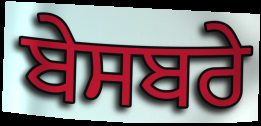
ਬੇਸਬਰੇ